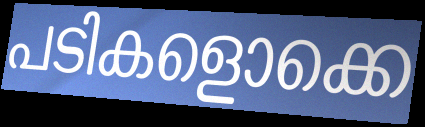
പടികളൊക്കെ